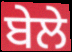
ਬੇਲੇ